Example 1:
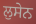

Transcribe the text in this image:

ਲੁਸੇਨ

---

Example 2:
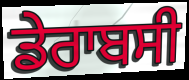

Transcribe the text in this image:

ਡੇਰਾਬਸੀ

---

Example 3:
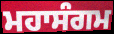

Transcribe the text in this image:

ਮਹਾਸੰਗਮ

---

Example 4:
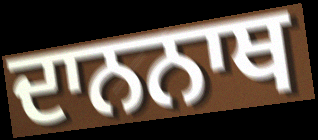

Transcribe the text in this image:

ਦਾਨਨਾਥ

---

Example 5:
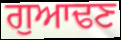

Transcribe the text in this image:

ਗੁਆਢਣ